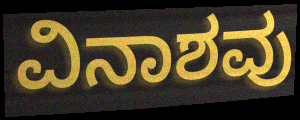
ವಿನಾಶವು